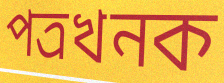
পত্ৰখনক